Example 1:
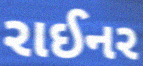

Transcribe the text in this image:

રાઈનર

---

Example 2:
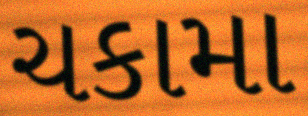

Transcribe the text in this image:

ચકામા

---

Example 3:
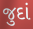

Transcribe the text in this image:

જુદાં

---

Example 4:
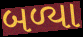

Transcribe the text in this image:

બળ્યા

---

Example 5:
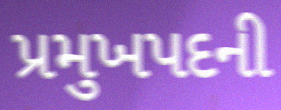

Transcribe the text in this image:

પ્રમુખપદની